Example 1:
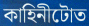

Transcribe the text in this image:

কাহিনীটোত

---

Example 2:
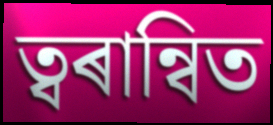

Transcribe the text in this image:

ত্বৰান্বিত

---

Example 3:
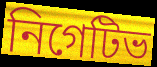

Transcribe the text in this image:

নিগেটিভ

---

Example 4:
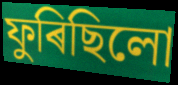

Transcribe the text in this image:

ফুৰিছিলো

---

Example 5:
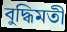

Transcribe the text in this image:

বুদ্ধিমতী